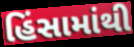
હિંસામાંથી